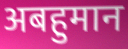
अबहुमान